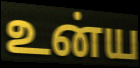
உன்ய